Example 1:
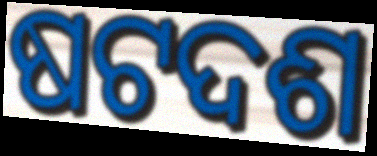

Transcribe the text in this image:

ଷଟଦଶ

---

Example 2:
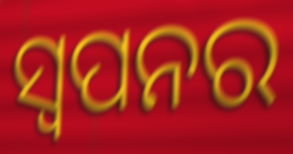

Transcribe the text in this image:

ସ୍ଵପନର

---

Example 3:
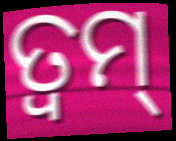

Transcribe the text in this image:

ତ୍ୱମ୍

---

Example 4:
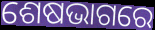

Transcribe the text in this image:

ଶେଷଭାଗରେ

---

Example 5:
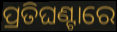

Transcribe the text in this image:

ପ୍ରତିଘଣ୍ଟାରେ